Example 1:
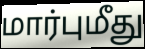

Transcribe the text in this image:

மார்புமீது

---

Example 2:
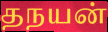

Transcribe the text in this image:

தநயன்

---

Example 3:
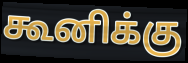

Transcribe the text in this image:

கூனிக்கு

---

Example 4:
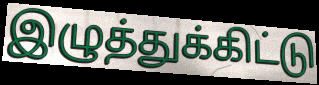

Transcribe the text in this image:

இழுத்துக்கிட்டு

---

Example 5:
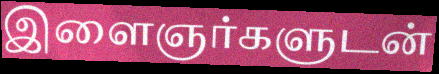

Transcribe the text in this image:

இளைஞர்களுடன்